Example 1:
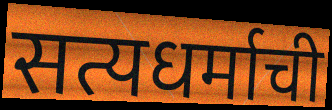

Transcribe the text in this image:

सत्यधर्माची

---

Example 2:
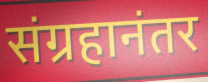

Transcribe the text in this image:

संग्रहानंतर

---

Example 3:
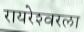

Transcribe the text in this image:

रायरेश्वरला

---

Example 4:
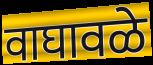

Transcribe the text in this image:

वाघावळे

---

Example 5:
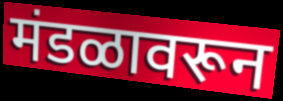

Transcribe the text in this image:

मंडळावरून